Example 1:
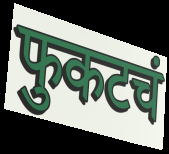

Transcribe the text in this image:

फुकटचं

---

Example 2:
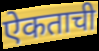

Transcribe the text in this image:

ऐकताची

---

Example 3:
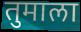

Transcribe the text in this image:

तुमाला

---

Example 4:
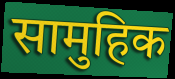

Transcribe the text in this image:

सामुहिक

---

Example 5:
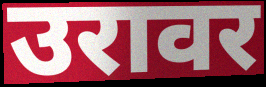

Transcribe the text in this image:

उरावर